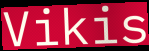
Vikis